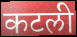
कटली